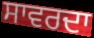
ਸਾਵਰਦਾ